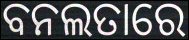
ବନଲତାରେ